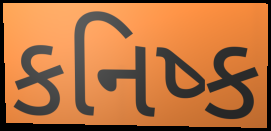
કનિષ્ક